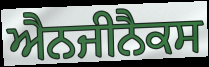
ਐਨਜੀਨੈਕਸ